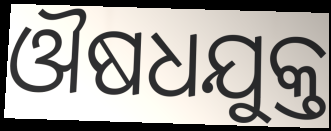
ଔଷଧଯୁକ୍ତ